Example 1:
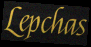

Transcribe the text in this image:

Lepchas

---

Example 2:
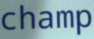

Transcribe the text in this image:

champ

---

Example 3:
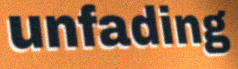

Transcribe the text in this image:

unfading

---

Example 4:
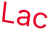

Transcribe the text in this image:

Lac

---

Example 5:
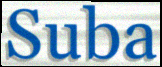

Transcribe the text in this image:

Suba